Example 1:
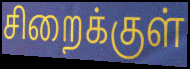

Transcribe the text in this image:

சிறைக்குள்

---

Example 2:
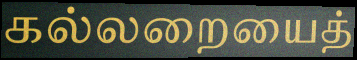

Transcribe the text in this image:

கல்லறையைத்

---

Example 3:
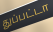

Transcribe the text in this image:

துப்பட்டா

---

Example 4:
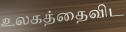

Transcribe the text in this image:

உலகத்தைவிட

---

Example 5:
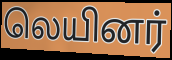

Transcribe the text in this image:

லெயினர்